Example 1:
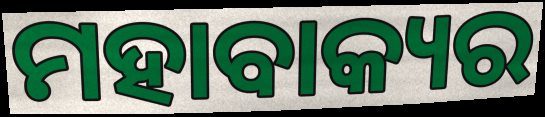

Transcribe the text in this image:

ମହାବାକ୍ୟର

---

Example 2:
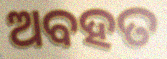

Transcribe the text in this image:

ଅବହତ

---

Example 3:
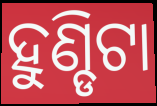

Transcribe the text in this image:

ହୁଣ୍ଡିଟା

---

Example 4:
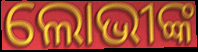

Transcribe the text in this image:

ଲୋଭୀଙ୍କ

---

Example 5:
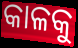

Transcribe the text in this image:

କାଳକୁ